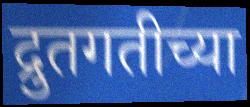
द्रुतगतीच्या